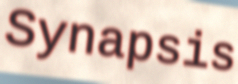
Synapsis